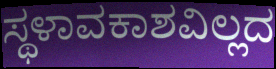
ಸ್ಥಳಾವಕಾಶವಿಲ್ಲದ